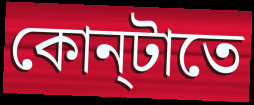
কোন্‌টাতে